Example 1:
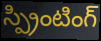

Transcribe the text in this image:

స్ప్రింటింగ్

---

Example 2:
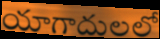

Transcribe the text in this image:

యాగాదులలో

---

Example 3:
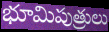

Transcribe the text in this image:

భూమిపుత్రులు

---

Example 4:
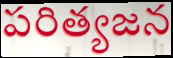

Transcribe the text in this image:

పరిత్యజన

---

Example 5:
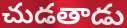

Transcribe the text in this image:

చుడతాడు